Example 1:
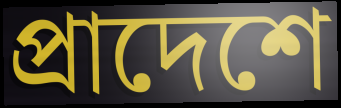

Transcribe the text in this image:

প্রাদেশে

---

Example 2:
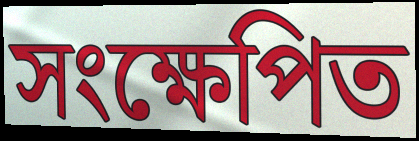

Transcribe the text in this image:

সংক্ষেপিত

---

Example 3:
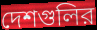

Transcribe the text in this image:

দেশগুলির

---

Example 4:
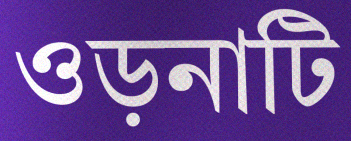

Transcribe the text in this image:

ওড়নাটি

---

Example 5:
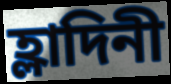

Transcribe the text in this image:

হ্লাদিনী